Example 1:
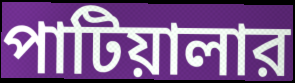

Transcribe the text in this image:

পাটিয়ালার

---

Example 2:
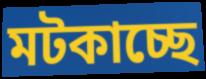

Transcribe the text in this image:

মটকাচ্ছে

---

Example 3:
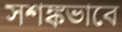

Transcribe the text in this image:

সশঙ্কভাবে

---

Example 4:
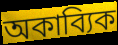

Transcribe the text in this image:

অকাব্যিক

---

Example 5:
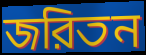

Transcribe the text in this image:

জরিতন